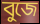
বুজে